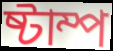
ষ্টাম্প